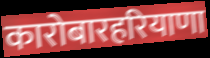
कारोबारहरियाणा